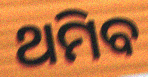
ଥମିବ